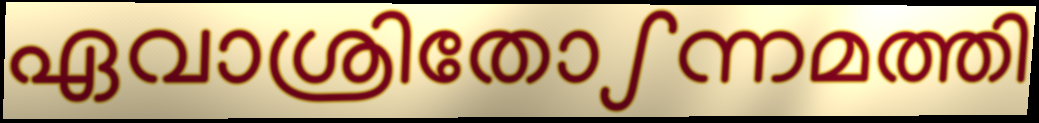
ഏവാശ്രിതോഽന്നമത്തി